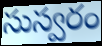
సుస్వరం